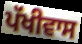
ਪੱਖੀਵਾਸ